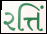
રત્તિં